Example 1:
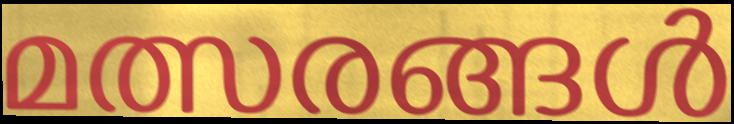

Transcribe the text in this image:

മത്സരങ്ങൾ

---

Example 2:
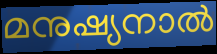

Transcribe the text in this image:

മനുഷ്യനാൽ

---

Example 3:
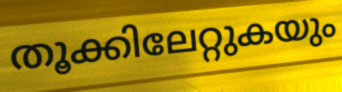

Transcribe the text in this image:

തൂക്കിലേറ്റുകയും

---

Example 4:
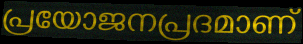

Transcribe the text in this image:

പ്രയോജനപ്രദമാണ്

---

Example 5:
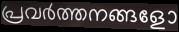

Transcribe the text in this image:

പ്രവർത്തനങ്ങളോ